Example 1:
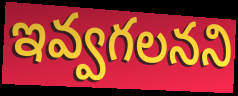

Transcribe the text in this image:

ఇవ్వగలనని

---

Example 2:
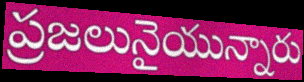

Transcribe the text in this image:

ప్రజలునైయున్నారు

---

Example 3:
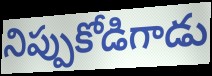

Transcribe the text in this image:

నిప్పుకోడిగాడు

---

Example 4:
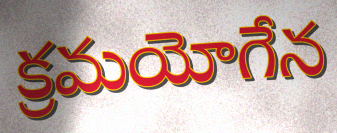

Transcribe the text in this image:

క్రమయోగేన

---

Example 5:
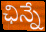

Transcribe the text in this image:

ఛిన్నే